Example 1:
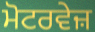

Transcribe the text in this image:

ਮੋਟਰਵੇਜ਼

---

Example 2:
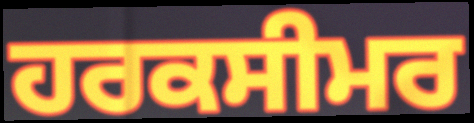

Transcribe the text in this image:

ਹਰਕਸੀਮਰ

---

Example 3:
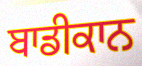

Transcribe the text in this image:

ਬਾਡੀਕਾਨ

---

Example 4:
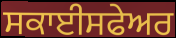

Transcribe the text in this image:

ਸਕਾਈਸਫੇਅਰ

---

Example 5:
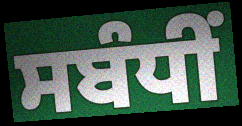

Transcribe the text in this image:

ਸਬੰਧੀਂ